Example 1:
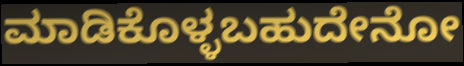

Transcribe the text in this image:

ಮಾಡಿಕೊಳ್ಳಬಹುದೇನೋ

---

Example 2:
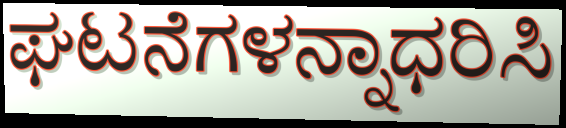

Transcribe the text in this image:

ಘಟನೆಗಳನ್ನಾಧರಿಸಿ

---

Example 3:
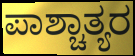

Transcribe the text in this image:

ಪಾಶ್ಚಾತ್ಯರ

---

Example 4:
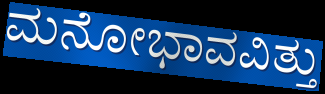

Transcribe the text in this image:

ಮನೋಭಾವವಿತ್ತು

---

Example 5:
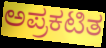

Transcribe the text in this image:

ಅಪ್ರಕಟಿತ